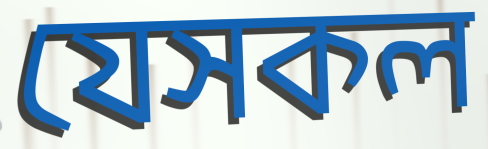
যেসকল